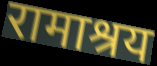
रामाश्रय